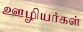
ஊழியர்கள்